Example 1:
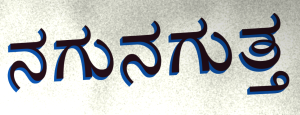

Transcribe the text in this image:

ನಗುನಗುತ್ತ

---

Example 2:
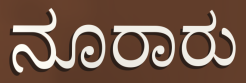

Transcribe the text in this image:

ನೂರಾರು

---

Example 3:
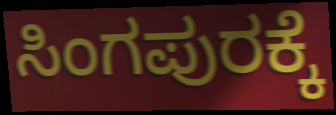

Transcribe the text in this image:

ಸಿಂಗಪುರಕ್ಕೆ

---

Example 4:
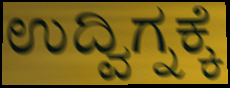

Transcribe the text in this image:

ಉದ್ವಿಗ್ನಕ್ಕೆ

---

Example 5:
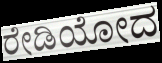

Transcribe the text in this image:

ರೇಡಿಯೋದ